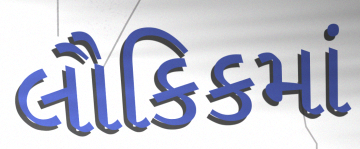
લૌકિકમાં